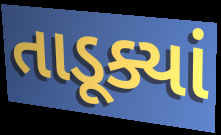
તાડૂક્યાં